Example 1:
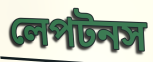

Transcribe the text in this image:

লেপটনস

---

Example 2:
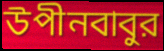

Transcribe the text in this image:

উপীনবাবুর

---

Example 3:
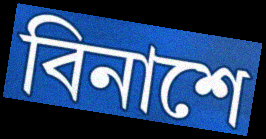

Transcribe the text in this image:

বিনাশে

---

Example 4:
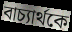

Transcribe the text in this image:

বাচ্যার্থকে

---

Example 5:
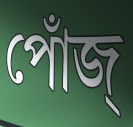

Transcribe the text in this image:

পোঁজ্